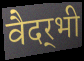
वैदर्भी